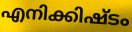
എനിക്കിഷ്ടം